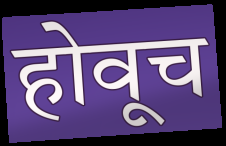
होवूच